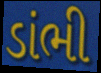
ડાંભી